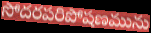
సోదరపరిపోషణమును